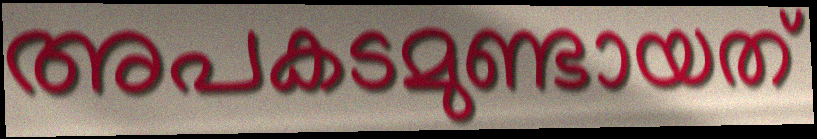
അപകടമുണ്ടായത്